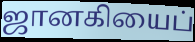
ஜானகியைப்